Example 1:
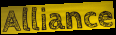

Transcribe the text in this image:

Alliance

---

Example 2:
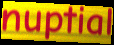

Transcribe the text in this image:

nuptial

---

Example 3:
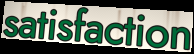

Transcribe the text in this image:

satisfaction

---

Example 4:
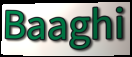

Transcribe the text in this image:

Baaghi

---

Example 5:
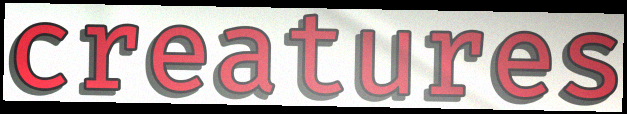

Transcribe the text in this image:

creatures